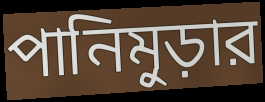
পানিমুড়ার